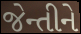
જેન્તીને